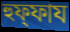
হুফ্ফায